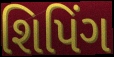
શિપિંગ